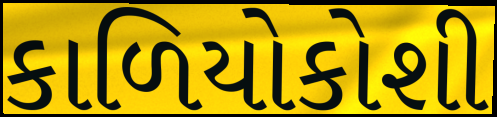
કાળિયોકોશી